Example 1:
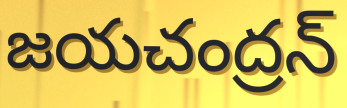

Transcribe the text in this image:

జయచంద్రన్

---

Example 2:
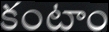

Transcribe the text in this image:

కంటాం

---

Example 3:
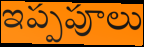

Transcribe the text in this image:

ఇప్పపూలు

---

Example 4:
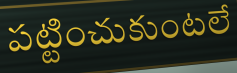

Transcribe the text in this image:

పట్టించుకుంటలే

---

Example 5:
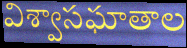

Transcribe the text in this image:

విశ్వాసఘాతాల